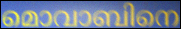
മൊവാബിനെ